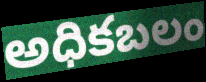
అధికబలం